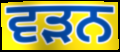
ਵੜਨ